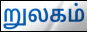
றுலகம்